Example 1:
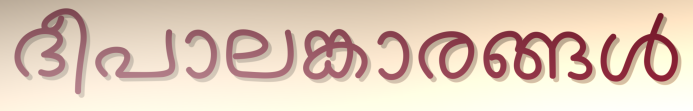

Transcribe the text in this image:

ദീപാലങ്കാരങ്ങൾ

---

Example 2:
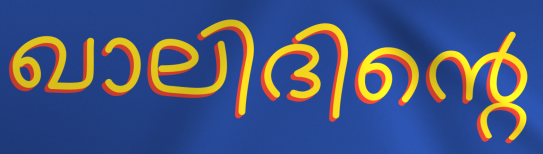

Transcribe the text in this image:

ഖാലിദിന്റെ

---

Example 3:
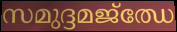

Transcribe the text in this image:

സമുദ്ദമജ്ഝേ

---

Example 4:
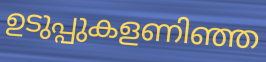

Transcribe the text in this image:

ഉടുപ്പുകളണിഞ്ഞ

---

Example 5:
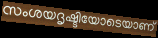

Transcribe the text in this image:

സംശയദൃഷ്ടിയോടെയാണ്